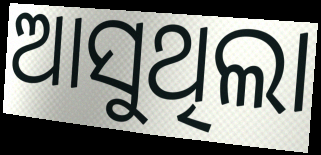
ଆସୁଥିଲା